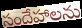
సందేహాలను